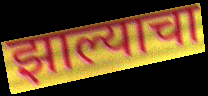
झाल्‍याचा